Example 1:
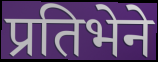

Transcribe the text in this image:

प्रतिभेने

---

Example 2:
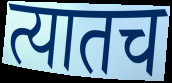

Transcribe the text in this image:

त्यातच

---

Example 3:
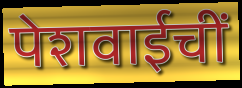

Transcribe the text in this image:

पेशवाईचीं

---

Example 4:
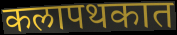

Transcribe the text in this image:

कलापथकात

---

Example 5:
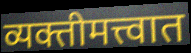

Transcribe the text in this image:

व्यक्तीमत्त्वात